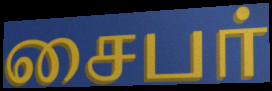
சைபர்